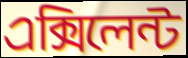
এক্সিলেন্ট